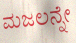
ಮಜಲನ್ನೇ